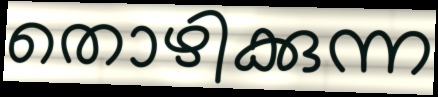
തൊഴിക്കുന്ന